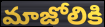
మాజోలికి